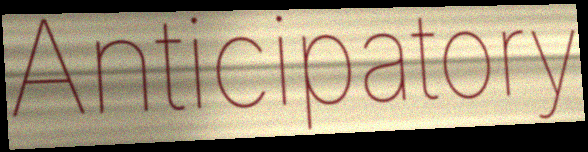
Anticipatory